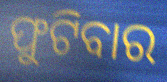
ଫୁଟିବାର